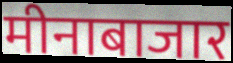
मीनाबाजार